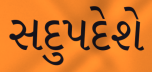
સદુપદેશે